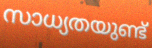
സാധ്യതയുണ്ട്